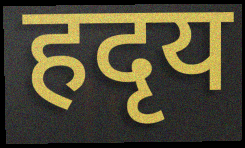
हदृय